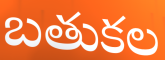
బతుకల